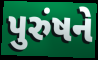
પુરુંષને